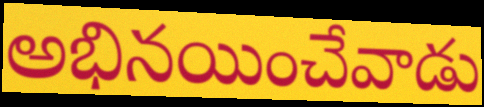
అభినయించేవాడు